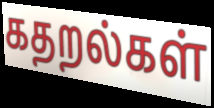
கதறல்கள்